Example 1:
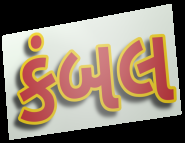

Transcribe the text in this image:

કંબલ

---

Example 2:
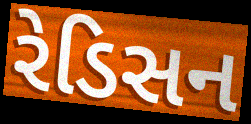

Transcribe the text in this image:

રેડિસન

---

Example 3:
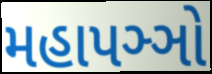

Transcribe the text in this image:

મહાપઞ્ઞો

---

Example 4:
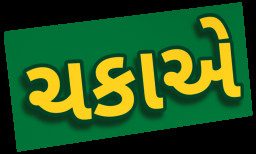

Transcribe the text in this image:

ચકાએ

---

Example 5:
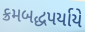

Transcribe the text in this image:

ક્રમબદ્ધપર્યાયે